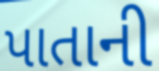
પાતાની